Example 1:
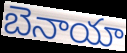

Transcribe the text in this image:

బెనాయా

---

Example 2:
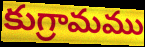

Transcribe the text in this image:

కుగ్రామము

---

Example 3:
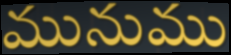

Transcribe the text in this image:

మునుము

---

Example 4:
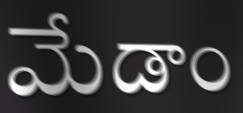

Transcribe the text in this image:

మేడాం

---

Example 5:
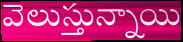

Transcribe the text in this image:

వెలుస్తున్నాయి